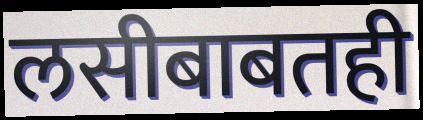
लसीबाबतही